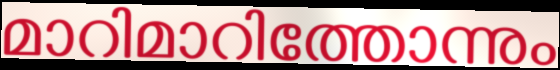
മാറിമാറിത്തോന്നും